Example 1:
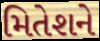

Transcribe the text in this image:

મિતેશને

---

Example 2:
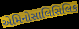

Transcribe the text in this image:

એમિનોસાલિસિલિક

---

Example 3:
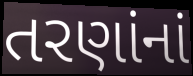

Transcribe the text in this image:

તરણાંનાં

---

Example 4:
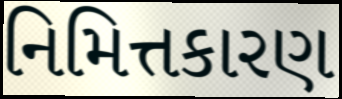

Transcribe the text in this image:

નિમિત્તકારણ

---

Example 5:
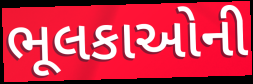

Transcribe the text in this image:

ભૂલકાઓની